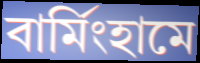
বার্মিংহামে